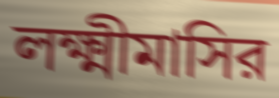
লক্ষ্মীমাসির